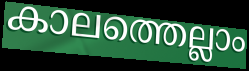
കാലത്തെല്ലാം